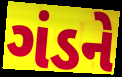
ગંડને